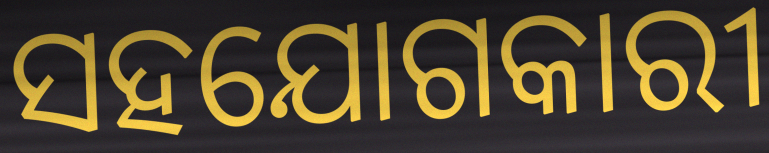
ସହଯୋଗକାରୀ